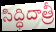
సిద్ధిదాత్రీ